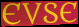
EVSE